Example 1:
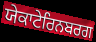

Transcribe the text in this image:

ਯੇਕਾਟੇਰਿਨਬਰਗ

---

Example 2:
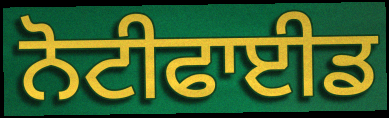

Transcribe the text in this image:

ਨੋਟੀਫਾਈਡ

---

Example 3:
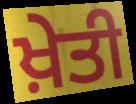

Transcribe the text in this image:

ਖ਼ੇਤੀ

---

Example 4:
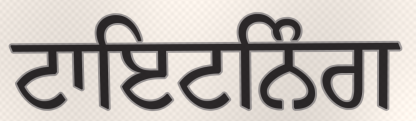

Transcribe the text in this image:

ਟਾਇਟਨਿੰਗ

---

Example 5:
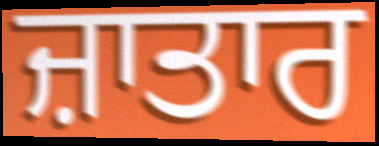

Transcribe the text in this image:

ਜ਼ਾਤਾਰ